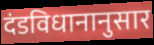
दंडविधानानुसार